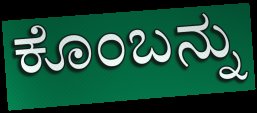
ಕೊಂಬನ್ನು